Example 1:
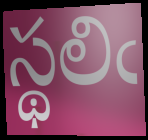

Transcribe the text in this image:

స్థలిఁ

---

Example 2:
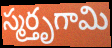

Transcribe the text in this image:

స్మర్తృగామి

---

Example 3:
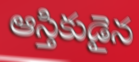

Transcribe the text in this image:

ఆస్తికుడైన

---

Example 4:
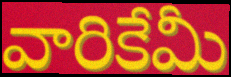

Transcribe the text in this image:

వారికేమీ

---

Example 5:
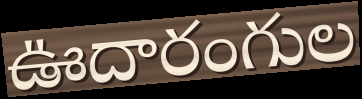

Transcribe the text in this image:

ఊదారంగుల